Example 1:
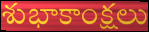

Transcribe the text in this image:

శుభాకాంక్షలు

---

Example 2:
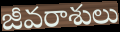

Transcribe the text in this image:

జీవరాశులు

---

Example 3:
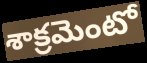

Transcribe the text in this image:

శాక్రమెంటో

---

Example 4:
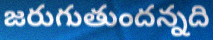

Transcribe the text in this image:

జరుగుతుందన్నది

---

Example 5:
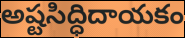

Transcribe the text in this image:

అష్టసిద్ధిదాయకం